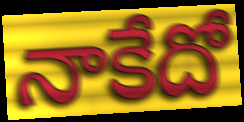
నాకేదో